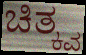
ಚಿತ್ಕ್ವ